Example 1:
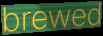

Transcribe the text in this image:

brewed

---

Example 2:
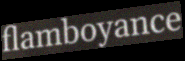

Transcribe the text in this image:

flamboyance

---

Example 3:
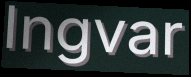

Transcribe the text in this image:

Ingvar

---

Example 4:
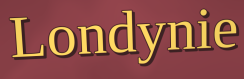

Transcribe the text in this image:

Londynie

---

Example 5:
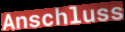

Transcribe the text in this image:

Anschluss